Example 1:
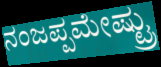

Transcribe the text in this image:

ನಂಜಪ್ಪಮೇಷ್ಟ್ರು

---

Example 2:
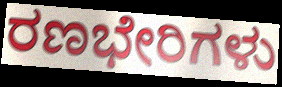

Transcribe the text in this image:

ರಣಭೇರಿಗಳು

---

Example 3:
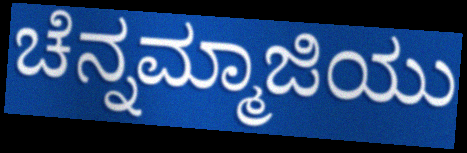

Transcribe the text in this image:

ಚೆನ್ನಮ್ಮಾಜಿಯು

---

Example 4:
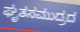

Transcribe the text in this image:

ಘೃತಸಮುದ್ರದ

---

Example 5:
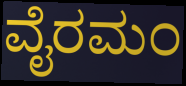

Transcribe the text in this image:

ವೈರಮಂ